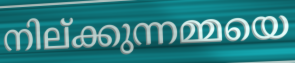
നില്ക്കുന്നമ്മയെ